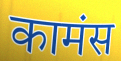
कामंस